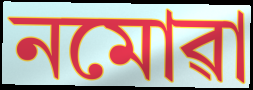
নমোৱা